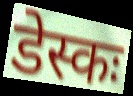
डेस्कः